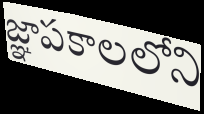
జ్ఞాపకాలలోని